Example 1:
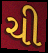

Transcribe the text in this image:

ચી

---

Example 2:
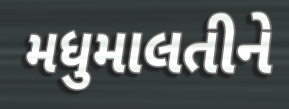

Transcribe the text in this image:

મધુમાલતીને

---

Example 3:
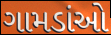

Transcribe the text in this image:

ગામડાંઓ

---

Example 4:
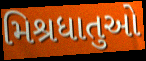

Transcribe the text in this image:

મિશ્રધાતુઓ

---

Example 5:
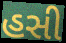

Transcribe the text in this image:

હસી